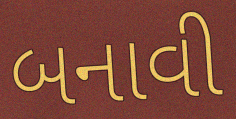
બનાવી